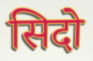
सिदो